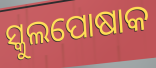
ସ୍କୁଲପୋଷାକ